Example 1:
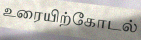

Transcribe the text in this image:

உரையிற்கோடல்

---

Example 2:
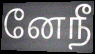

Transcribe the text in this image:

னேநீ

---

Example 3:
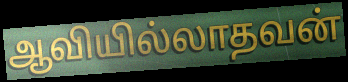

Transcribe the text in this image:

ஆவியில்லாதவன்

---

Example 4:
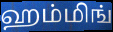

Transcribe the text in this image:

ஹம்மிங்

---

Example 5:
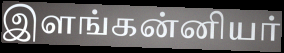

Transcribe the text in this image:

இளங்கன்னியர்